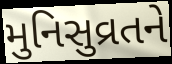
મુનિસુવ્રતને